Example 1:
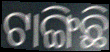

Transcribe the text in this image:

ଟାଙ୍ଗିଛି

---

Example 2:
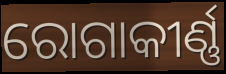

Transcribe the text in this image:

ରୋଗାକୀର୍ଣ୍ଣ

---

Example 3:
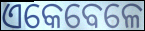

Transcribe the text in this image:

ଏକେବେଳେ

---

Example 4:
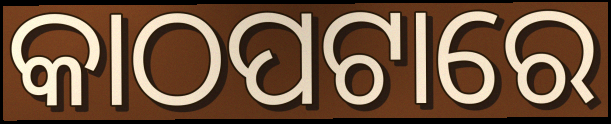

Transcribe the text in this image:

କାଠପଟାରେ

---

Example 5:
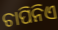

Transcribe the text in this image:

ଚାପିନିଏ